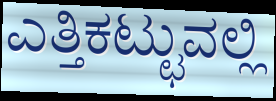
ಎತ್ತಿಕಟ್ಟುವಲ್ಲಿ